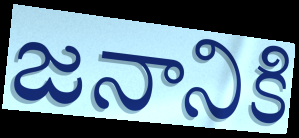
జనానికి